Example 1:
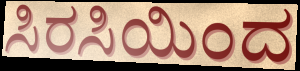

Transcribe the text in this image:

ಸಿರಸಿಯಿಂದ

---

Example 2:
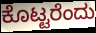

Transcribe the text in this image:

ಕೊಟ್ಟರೆಂದು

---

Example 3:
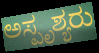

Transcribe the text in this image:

ಅಸ್ಪೃಶ್ಯರು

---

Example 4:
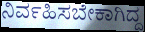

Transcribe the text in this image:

ನಿರ್ವಹಿಸಬೇಕಾಗಿದ್ದ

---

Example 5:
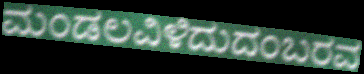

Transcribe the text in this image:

ಮಂಡಲವಿಳಿದುದಂಬರವ